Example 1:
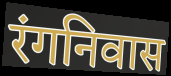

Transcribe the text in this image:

रंगनिवास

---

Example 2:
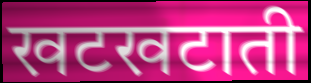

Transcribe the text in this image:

खटखटाती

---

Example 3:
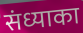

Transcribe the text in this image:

संध्याका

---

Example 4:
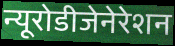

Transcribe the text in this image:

न्यूरोडीजेनेरेशन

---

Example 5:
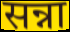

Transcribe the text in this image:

सन्ना